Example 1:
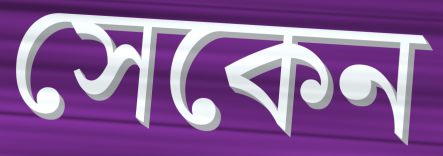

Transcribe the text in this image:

সেকেন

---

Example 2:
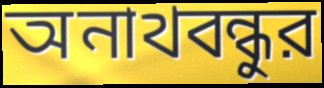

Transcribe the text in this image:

অনাথবন্ধুর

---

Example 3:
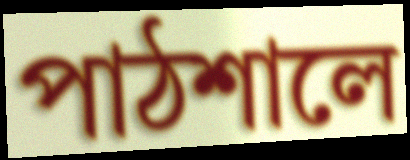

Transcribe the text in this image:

পাঠশালে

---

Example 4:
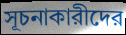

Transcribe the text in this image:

সূচনাকারীদের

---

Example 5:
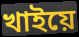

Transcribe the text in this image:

খাইয়ে